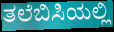
ತಲೆಬಿಸಿಯಲ್ಲಿ